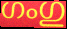
ഗംഗു